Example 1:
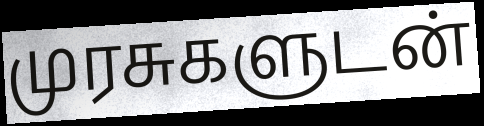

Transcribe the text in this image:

முரசுகளுடன்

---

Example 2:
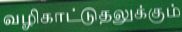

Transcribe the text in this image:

வழிகாட்டுதலுக்கும்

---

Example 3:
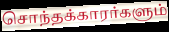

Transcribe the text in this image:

சொந்தக்காரர்களும்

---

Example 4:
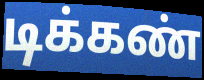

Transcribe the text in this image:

டிக்கண்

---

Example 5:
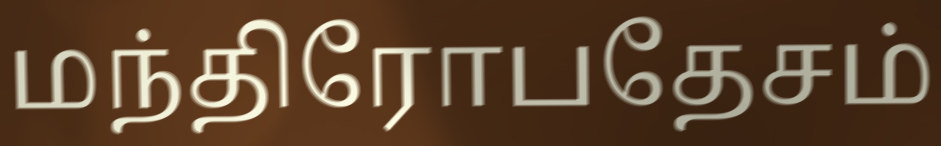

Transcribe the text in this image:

மந்திரோபதேசம்